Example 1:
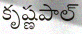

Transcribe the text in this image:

కృష్ణపాల్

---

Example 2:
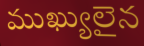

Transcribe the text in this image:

ముఖ్యులైన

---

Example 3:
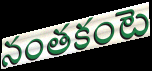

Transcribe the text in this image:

నంతకంటె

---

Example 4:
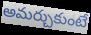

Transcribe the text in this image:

అమర్చుకుంటే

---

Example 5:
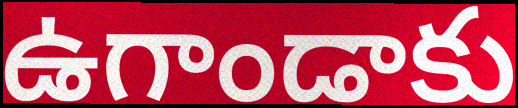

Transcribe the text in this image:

ఉగాండాకు